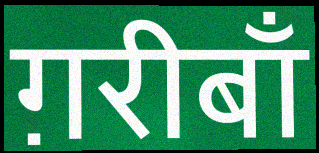
ग़रीबाँ